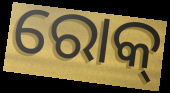
ରୋକ୍